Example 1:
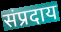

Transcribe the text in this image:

संप्रदाय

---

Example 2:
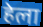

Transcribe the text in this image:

हेला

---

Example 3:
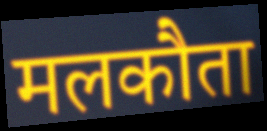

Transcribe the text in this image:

मलकौता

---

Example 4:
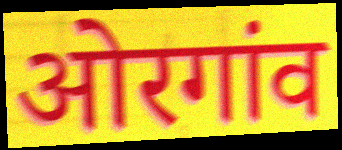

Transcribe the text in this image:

ओरगांव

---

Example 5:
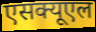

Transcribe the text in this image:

एसक्यूएल